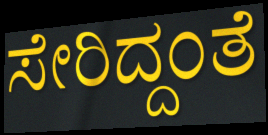
ಸೇರಿದ್ದಂತೆ